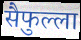
सैफुल्ला